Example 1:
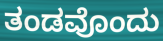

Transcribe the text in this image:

ತಂಡವೊಂದು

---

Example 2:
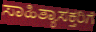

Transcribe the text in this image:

ಸಾಹಿತ್ಯಾಸಕ್ತರಿಗೆ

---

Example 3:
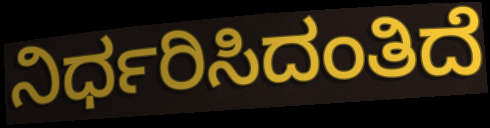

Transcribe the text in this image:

ನಿರ್ಧರಿಸಿದಂತಿದೆ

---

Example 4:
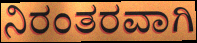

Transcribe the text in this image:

ನಿರಂತರವಾಗಿ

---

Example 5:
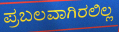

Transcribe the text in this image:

ಪ್ರಬಲವಾಗಿರಲಿಲ್ಲ